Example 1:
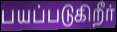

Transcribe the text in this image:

பயப்படுகிறீர்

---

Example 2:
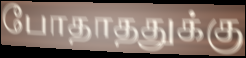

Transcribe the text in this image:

போதாததுக்கு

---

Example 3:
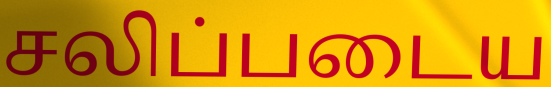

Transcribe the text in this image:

சலிப்படைய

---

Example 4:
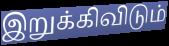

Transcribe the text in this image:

இறுக்கிவிடும்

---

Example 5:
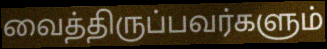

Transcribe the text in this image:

வைத்திருப்பவர்களும்